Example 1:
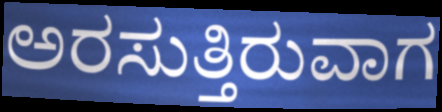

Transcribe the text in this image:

ಅರಸುತ್ತಿರುವಾಗ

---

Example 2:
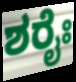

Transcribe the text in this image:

ಶರೈಃ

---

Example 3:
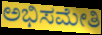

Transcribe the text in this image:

ಅಭಿಸಮೇತಿ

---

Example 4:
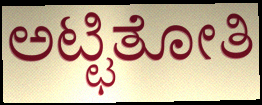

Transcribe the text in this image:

ಅಟ್ಟಿತೋತಿ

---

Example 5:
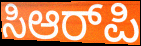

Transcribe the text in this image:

ಸಿಆರ್‌ಪಿ